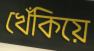
খেঁকিয়ে